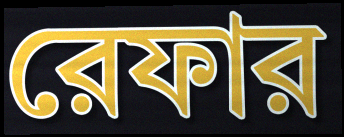
রেফার